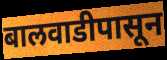
बालवाडीपासून